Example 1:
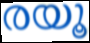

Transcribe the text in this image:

രയൂ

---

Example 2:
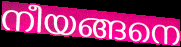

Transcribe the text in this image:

നീയങ്ങനെ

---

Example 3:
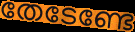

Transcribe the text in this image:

തേടേണ്ടേ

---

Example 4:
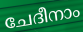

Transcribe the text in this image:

ചേദീനാം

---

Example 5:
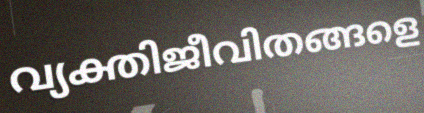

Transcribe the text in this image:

വ്യക്തിജീവിതങ്ങളെ